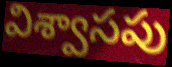
విశ్వాసపు